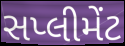
સપ્લીમેંટ